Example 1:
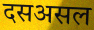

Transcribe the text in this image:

दसअसल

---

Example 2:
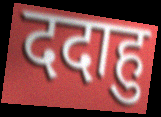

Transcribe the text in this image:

ददाहु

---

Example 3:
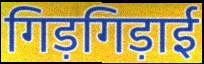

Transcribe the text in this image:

गिड़गिड़ाई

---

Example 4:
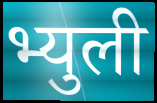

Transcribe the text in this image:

भ्युली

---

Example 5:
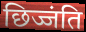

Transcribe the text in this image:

छिज्जंति